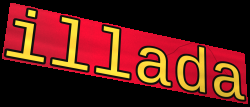
illada